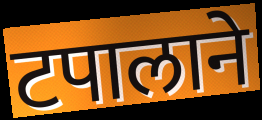
टपालाने